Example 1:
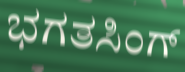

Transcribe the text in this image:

ಭಗತಸಿಂಗ್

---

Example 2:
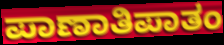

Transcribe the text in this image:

ಪಾಣಾತಿಪಾತಂ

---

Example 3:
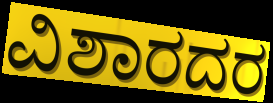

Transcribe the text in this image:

ವಿಶಾರದರ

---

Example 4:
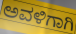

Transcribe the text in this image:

ಅವಳಿಗಾಗಿ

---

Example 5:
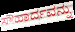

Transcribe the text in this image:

ಸೌಹಾರ್ದವನ್ನು